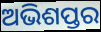
ଅଭିଶପ୍ତର